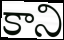
కాని